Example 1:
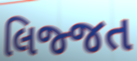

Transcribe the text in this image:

લિજ્જત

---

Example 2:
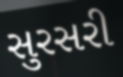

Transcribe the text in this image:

સુરસરી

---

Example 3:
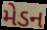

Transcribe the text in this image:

મેડન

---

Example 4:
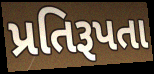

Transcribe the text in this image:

પ્રતિરૂપતા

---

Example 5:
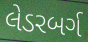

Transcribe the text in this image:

લેડરબર્ગ